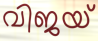
വിജയ്